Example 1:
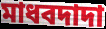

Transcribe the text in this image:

মাধবদাদা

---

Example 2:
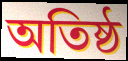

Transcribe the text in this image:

অতিষ্ঠ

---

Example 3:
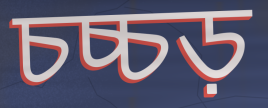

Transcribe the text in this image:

চচ্চড়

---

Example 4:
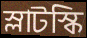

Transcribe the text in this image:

স্লাটস্কি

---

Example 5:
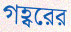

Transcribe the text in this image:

গহ্বরের